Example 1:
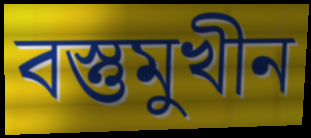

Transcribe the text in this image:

বস্তুমুখীন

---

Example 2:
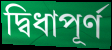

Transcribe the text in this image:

দ্বিধাপূর্ণ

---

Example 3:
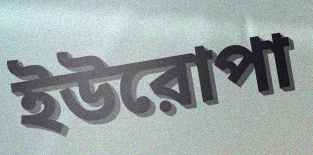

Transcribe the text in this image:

ইউরোপা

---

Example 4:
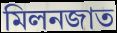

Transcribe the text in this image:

মিলনজাত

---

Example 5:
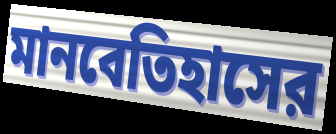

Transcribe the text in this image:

মানবেতিহাসের